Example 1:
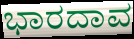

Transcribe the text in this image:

ಭಾರದಾವ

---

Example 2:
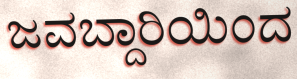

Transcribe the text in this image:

ಜವಬ್ದಾರಿಯಿಂದ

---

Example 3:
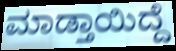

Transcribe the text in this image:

ಮಾಡ್ತಾಯಿದ್ದೆ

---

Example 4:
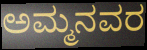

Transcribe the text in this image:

ಅಮ್ಮನವರ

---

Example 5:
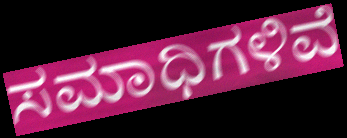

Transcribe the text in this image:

ಸಮಾಧಿಗಳಿವೆ